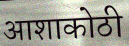
आशाकोठी